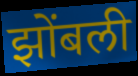
झोंबली